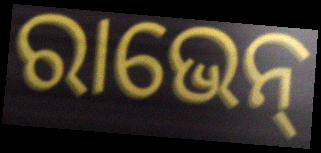
ରାଭେନ୍